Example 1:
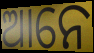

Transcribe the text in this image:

ଆନେ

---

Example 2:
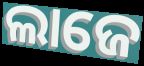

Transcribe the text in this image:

ଲାଜେ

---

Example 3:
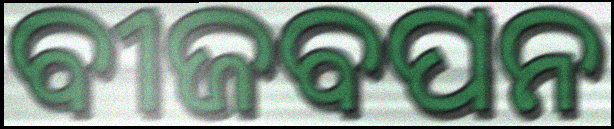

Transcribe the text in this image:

ବୀଜବପନ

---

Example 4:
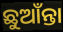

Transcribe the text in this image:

ଛୁଆଁନ୍ତା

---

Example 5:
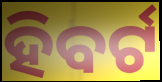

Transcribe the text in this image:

ହିବର୍ଟ